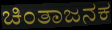
ಚಿಂತಾಜನಕ